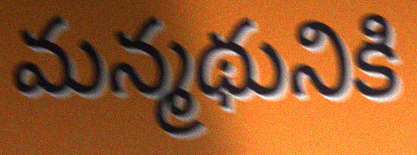
మన్మథునికి